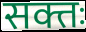
सक्तः